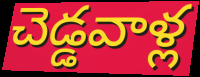
చెడ్డవాళ్ల